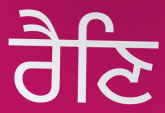
ਰੈਣਿ